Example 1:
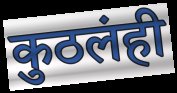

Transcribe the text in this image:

कुठलंही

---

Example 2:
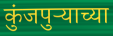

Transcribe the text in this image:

कुंजपुऱ्याच्या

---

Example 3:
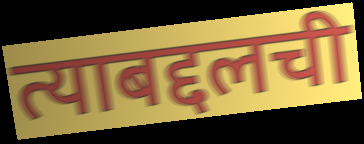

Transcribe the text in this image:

त्याबद्दलची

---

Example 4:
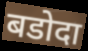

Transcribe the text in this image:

बडोदा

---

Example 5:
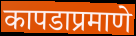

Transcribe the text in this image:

कापडाप्रमाणे